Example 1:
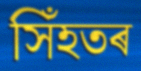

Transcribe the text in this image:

সিঁহতৰ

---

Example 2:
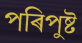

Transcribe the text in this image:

পৰিপুষ্ট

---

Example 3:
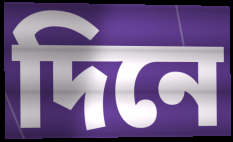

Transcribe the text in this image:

দিনে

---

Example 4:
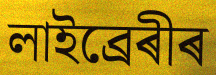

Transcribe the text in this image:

লাইব্ৰেৰীৰ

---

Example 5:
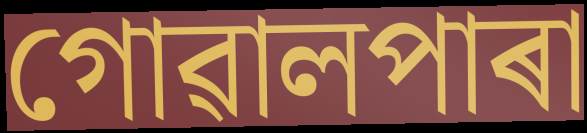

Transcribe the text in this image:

গোৱালপাৰা